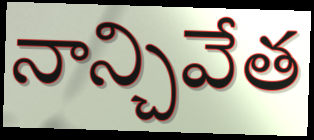
నాన్చివేత